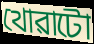
থোৱাটো